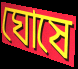
ঘোষে